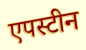
एपस्टीन